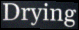
Drying